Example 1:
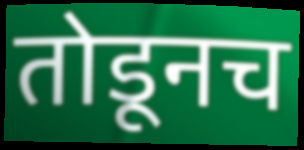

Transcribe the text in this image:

तोडूनच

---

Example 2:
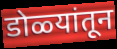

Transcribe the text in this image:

डोळ्यांतून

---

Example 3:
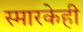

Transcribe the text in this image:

स्मारकेही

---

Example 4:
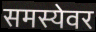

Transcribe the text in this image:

समस्येवर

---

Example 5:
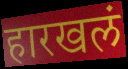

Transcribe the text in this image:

हारखलं